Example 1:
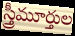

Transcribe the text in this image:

స్త్రీమూర్తుల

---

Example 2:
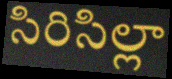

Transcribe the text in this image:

సిరిసిల్లా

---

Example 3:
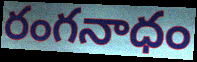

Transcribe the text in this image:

రంగనాధం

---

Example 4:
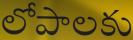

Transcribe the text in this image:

లోపాలకు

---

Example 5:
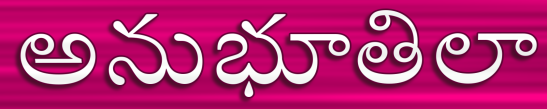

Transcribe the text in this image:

అనుభూతిలా